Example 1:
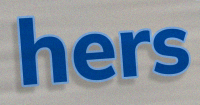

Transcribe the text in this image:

hers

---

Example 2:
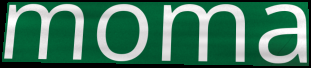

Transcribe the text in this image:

moma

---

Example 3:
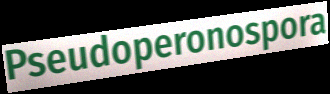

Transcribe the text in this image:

Pseudoperonospora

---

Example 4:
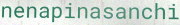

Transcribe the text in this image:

nenapinasanchi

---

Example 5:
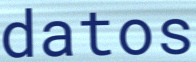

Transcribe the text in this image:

datos